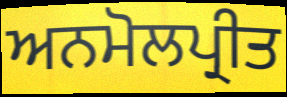
ਅਨਮੋਲਪ੍ਰੀਤ